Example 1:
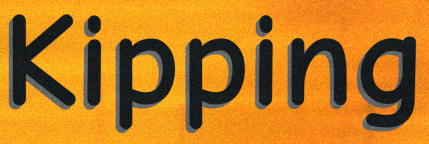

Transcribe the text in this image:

Kipping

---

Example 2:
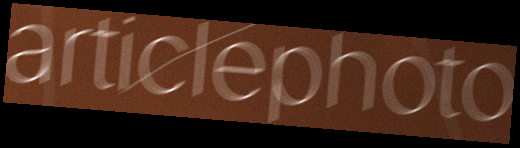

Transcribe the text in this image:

articlephoto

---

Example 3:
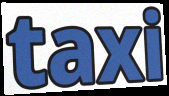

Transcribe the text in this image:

taxi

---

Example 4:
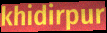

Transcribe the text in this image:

khidirpur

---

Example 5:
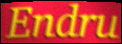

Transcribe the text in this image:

Endru